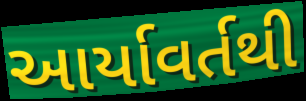
આર્યાવર્તથી